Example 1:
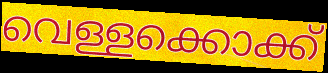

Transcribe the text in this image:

വെള്ളക്കൊക്ക്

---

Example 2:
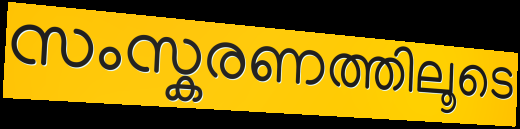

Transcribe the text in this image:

സംസ്കരണത്തിലൂടെ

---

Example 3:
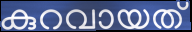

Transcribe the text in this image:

കുറവായത്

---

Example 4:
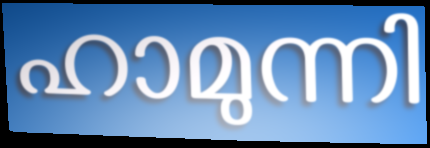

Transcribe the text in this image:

ഹാമുന്നി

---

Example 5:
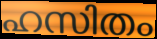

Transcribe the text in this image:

ഹസിതം